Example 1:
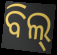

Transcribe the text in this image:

ବିଲ୍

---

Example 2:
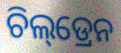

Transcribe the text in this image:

ଚିଲ୍‌ଡ୍ରେନ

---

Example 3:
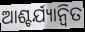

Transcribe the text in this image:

ଆଶ୍ଚର୍ଯ୍ୟାନ୍ୱିତ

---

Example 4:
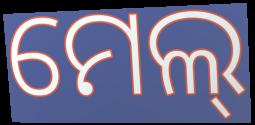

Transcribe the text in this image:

ମେଲ୍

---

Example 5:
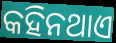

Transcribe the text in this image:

କହିନଥାଏ